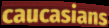
caucasians